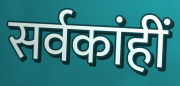
सर्वकांहीं